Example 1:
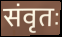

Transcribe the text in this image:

संवृतः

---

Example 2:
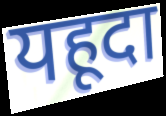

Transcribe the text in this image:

यहूदा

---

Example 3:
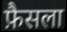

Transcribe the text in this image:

फ़ैसला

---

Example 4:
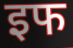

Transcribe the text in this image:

इफ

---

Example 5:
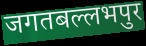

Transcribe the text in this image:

जगतबल्लभपुर